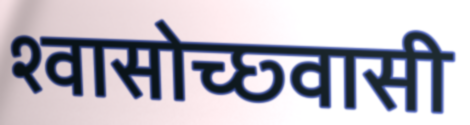
श्वासोच्छ्वासी